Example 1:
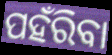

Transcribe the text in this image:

ପହଁରିବା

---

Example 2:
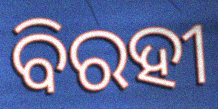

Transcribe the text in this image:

ବିରହୀ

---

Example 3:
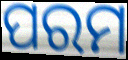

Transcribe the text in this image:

ପରମ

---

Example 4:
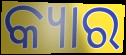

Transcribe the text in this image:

କ୍ୟାର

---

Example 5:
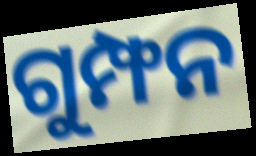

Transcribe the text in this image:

ଗୁମ୍ଫନ